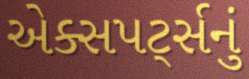
એક્સપર્ટ્સનું